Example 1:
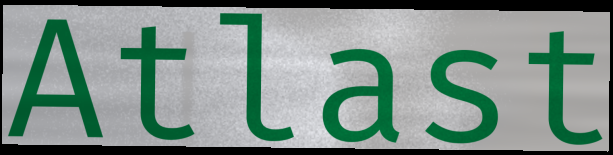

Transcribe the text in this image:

Atlast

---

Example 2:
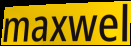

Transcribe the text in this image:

maxwel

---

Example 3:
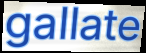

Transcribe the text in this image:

gallate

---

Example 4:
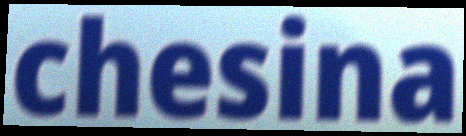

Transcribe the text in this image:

chesina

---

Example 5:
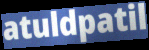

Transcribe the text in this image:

atuldpatil